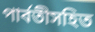
পার্বতীসহিত